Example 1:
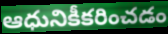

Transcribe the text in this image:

ఆధునికీకరించడం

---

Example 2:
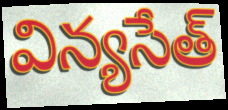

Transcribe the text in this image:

విన్యసేత్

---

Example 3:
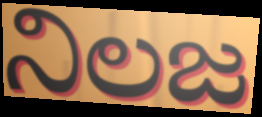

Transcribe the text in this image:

నిలజ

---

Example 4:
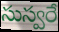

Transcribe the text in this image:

సుస్వరే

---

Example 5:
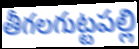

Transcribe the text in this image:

తీగలగుట్టపల్లి